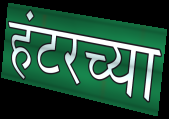
हंटरच्या